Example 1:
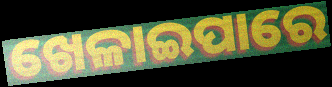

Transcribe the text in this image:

ଖେଳାଇପାରେ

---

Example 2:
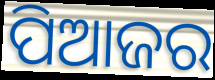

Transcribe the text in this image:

ପିଆଜର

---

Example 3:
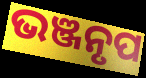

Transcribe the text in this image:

ଭଞ୍ଜନୃପ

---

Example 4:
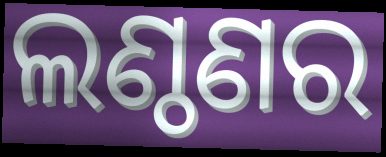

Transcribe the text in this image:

ଲଣ୍ଠଣର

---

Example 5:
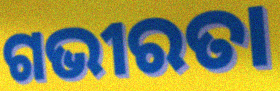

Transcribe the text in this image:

ଗଭୀରତା